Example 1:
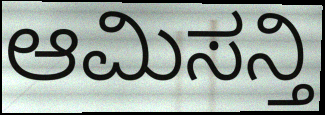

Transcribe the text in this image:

ಆಮಿಸನ್ತಿ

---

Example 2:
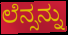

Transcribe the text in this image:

ಲೆನ್ಸನ್ನು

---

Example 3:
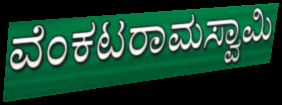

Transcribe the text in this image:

ವೆಂಕಟರಾಮಸ್ವಾಮಿ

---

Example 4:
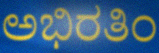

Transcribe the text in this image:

ಅಭಿರತಿಂ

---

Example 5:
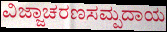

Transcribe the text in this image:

ವಿಜ್ಜಾಚರಣಸಮ್ಪದಾಯ